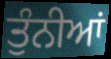
ਤੁੰਨੀਆਂ